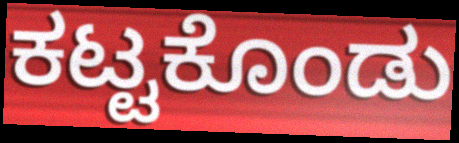
ಕಟ್ಟಕೊಂಡು